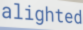
alighted